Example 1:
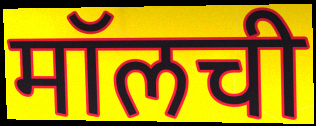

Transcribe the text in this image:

मॉलची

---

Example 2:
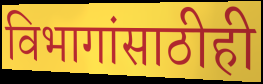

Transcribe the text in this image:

विभागांसाठीही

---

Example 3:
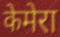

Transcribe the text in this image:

केमेरा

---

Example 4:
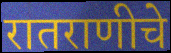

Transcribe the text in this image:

रातराणीचे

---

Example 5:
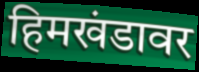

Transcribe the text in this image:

हिमखंडावर